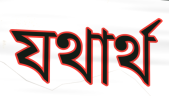
যথার্থ